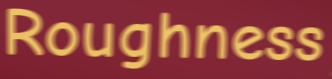
Roughness